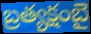
బ్రత్యక్షంబై